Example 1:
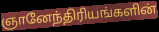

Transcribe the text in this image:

ஞானேந்திரியங்களின்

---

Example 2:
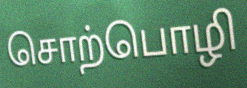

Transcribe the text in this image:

சொற்பொழி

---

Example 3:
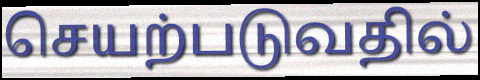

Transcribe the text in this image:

செயற்படுவதில்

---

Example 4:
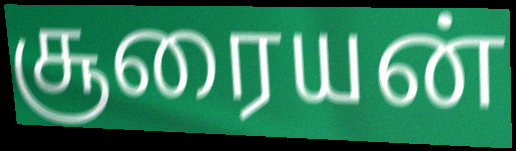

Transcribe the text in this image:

சூரையன்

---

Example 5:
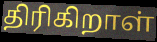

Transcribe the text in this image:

திரிகிறாள்